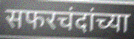
सफरचंदांच्या